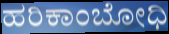
ಹರಿಕಾಂಬೋಧಿ